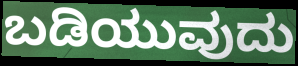
ಬಡಿಯುವುದು